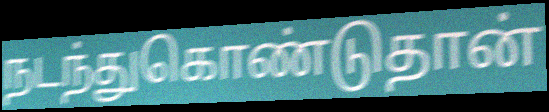
நடந்துகொண்டுதான்